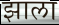
झाला